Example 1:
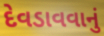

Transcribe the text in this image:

દેવડાવવાનું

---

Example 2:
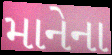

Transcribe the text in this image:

માનેના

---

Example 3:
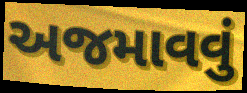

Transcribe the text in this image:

અજમાવવું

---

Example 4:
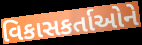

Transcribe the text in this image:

વિકાસકર્તાઓને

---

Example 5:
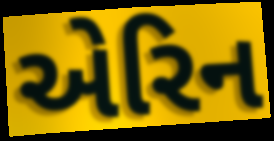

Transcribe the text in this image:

એરિન